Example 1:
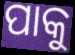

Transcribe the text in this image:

ପାକୁ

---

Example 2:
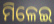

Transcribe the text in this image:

ମିଳେଇ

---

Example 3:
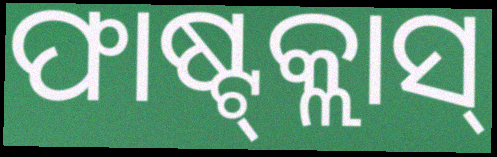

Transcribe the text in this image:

ଫାଷ୍ଟ୍‍କ୍ଲାସ୍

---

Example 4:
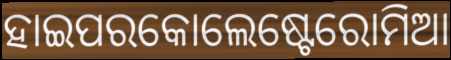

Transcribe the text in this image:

ହାଇପରକୋଲେଷ୍ଟେରୋମିଆ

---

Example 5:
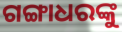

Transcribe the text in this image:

ଗଙ୍ଗାଧରଙ୍କୁ